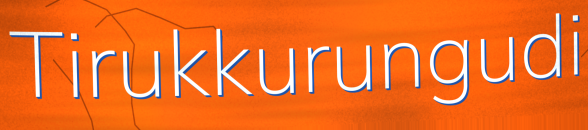
Tirukkurungudi